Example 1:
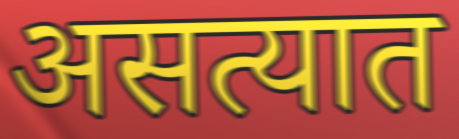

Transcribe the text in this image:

असत्यात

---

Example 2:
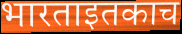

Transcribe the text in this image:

भारताइतकाच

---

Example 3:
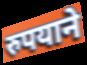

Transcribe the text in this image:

रुपयाने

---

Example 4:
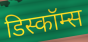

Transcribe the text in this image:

डिस्कॉम्स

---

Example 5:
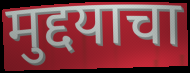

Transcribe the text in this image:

मुद्दयाचा